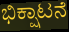
ಭಿಕ್ಷಾಟನೆ